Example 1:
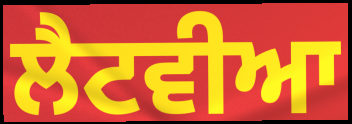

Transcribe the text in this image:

ਲੈਟਵੀਆ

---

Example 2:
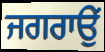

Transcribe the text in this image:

ਜਗਰਾਉਂ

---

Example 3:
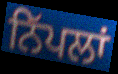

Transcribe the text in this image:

ਨਿੱਪਲਾਂ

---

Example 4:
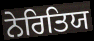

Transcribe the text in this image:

ਨੇਰਿਤਿਯ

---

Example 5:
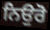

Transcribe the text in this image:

ਨਿਉਰੋ